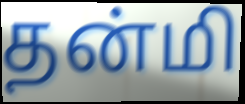
தன்மி